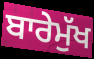
ਬਾਰੇਮੁੱਖ